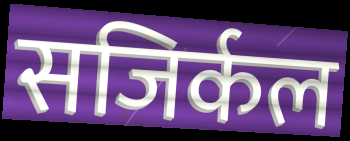
सजिर्कल